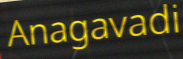
Anagavadi